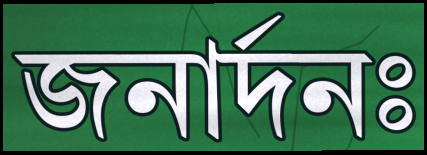
জনার্দনঃ